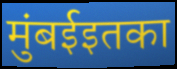
मुंबईइतका